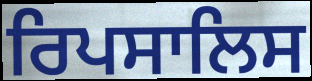
ਰਿਪਸਾਲਿਸ